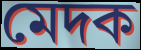
মেদক